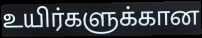
உயிர்களுக்கான